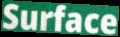
Surface